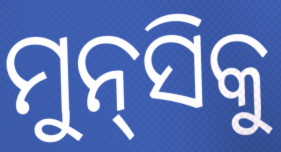
ମୁନ୍‌ସିକୁ